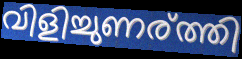
വിളിച്ചുണര്ത്തി